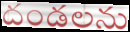
దండలను